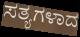
ಸತ್ಯಗಳಾದ